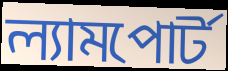
ল্যামপোর্ট